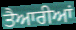
ਤੈਆਰੀਆਂ